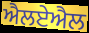
ਐਲਏਐਲ